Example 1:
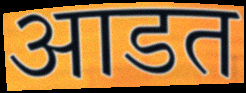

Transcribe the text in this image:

आडत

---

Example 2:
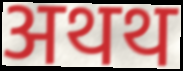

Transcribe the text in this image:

अथथ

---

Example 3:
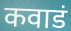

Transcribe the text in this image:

कवाडं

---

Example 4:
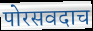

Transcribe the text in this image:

पोरसवदाच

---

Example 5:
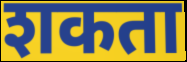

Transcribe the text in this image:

शकता